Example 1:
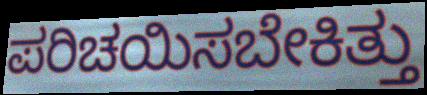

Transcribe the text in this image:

ಪರಿಚಯಿಸಬೇಕಿತ್ತು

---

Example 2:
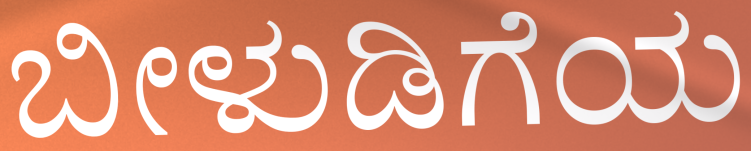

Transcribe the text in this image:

ಬೀಳುಡಿಗೆಯ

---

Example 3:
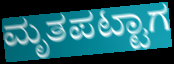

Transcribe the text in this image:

ಮೃತಪಟ್ಟಾಗ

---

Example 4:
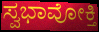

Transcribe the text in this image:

ಸ್ವಭಾವೋಕ್ತಿ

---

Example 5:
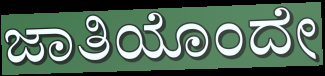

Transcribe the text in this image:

ಜಾತಿಯೊಂದೇ